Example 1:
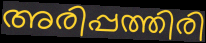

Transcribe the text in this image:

അരിപ്പത്തിരി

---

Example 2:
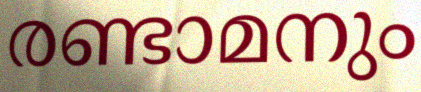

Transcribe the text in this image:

രണ്ടാമനും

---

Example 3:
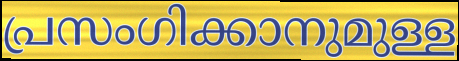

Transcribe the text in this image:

പ്രസംഗിക്കാനുമുള്ള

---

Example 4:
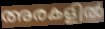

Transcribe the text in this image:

അരകളിൽ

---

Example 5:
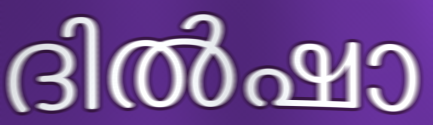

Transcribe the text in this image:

ദിൽഷാ